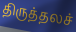
திருத்தலச்